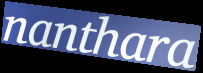
nanthara